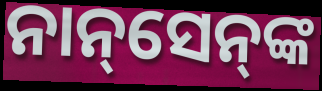
ନାନ୍‌ସେନ୍‌ଙ୍କ